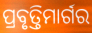
ପ୍ରବୃତ୍ତିମାର୍ଗର